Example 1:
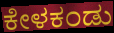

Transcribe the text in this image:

ಕೇಳಕಂಡು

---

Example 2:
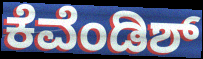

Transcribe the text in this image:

ಕೆವೆಂಡಿಶ್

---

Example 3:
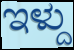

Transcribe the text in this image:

ಇಳ್ದು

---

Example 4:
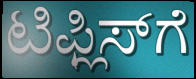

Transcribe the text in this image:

ಟಿಫ್ಲಿಸ್‍ಗೆ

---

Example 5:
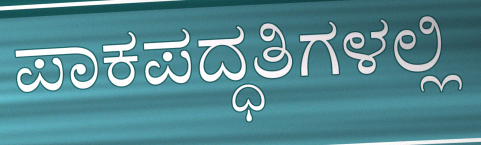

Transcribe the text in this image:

ಪಾಕಪದ್ಧತಿಗಳಲ್ಲಿ